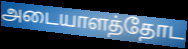
அடையாளத்தோட